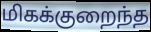
மிகக்குறைந்த